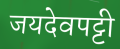
जयदेवपट्टी